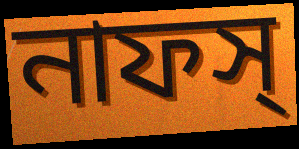
নাফস্